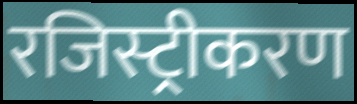
रजिस्‍ट्रीकरण